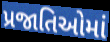
પ્રજાતિઓમાં